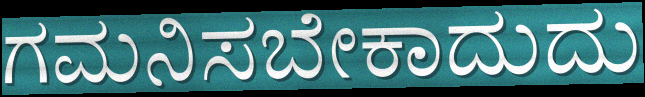
ಗಮನಿಸಬೇಕಾದುದು